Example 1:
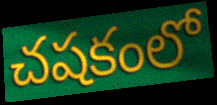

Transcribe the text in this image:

చషకంలో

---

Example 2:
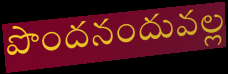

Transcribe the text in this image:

పొందనందువల్ల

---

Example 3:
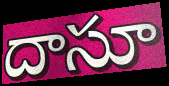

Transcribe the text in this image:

దాసూ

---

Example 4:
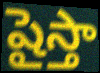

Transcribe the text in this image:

షైస్తా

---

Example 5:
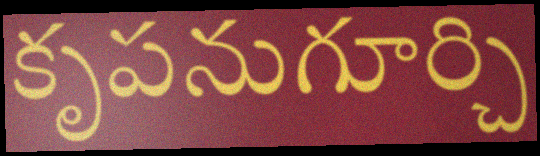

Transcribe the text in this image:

కృపనుగూర్చి